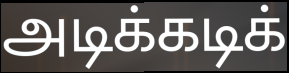
அடிக்கடிக்